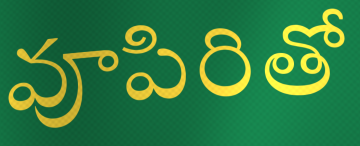
వూపిరితో